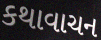
કથાવાચન